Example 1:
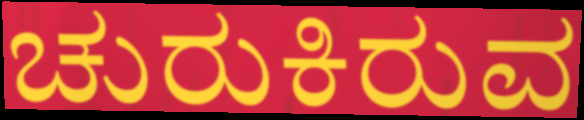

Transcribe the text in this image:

ಚುರುಕಿರುವ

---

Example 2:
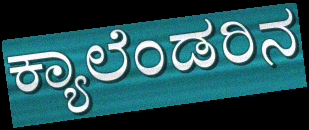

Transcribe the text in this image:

ಕ್ಯಾಲೆಂಡರಿನ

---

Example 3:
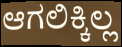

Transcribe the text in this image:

ಆಗಲಿಕ್ಕಿಲ್ಲ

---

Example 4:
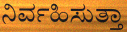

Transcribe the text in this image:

ನಿರ್ವಹಿಸುತ್ತಾ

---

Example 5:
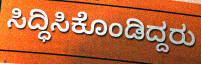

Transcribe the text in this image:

ಸಿದ್ಧಿಸಿಕೊಂಡಿದ್ದರು